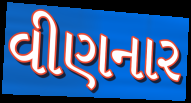
વીણનાર